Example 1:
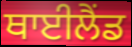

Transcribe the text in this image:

ਥਾਈਲੈਂਡ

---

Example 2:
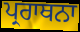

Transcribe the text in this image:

ਪ੍ਰਰਾਥਨਾ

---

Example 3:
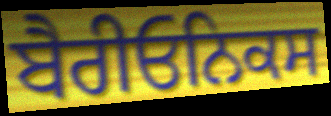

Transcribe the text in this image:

ਬੈਰੀਓਨਿਕਸ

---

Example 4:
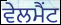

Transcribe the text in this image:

ਵੇਲਮੈਂਟ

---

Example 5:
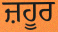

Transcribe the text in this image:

ਜ਼ਹੂਰ